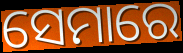
ସେମାରେ